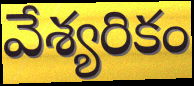
వేశ్యరికం